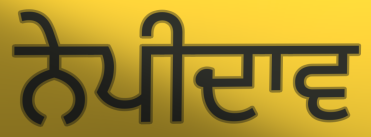
ਨੇਪੀਦਾਵ